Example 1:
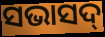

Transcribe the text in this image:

ସଭାସଦ୍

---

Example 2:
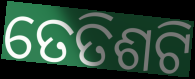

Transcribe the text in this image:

ତେତିଶଟି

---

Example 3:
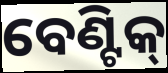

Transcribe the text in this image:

ବେଣ୍ଟିକ୍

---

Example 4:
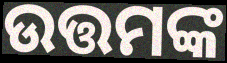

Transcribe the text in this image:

ଉତ୍ତମଙ୍କ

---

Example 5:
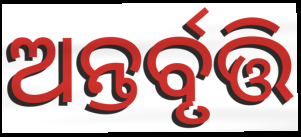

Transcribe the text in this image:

ଅନ୍ତର୍ବୃତ୍ତି